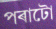
পৰাটো